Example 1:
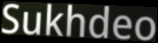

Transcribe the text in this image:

Sukhdeo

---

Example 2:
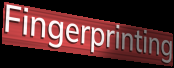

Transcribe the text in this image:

Fingerprinting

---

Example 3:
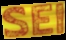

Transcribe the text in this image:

SEI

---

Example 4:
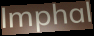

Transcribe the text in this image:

Imphal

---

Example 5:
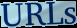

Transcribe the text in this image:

URLs